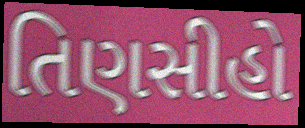
તિણસીહો